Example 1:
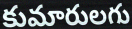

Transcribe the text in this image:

కుమారులగు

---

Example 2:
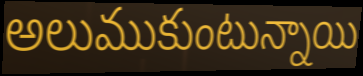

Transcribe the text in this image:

అలుముకుంటున్నాయి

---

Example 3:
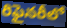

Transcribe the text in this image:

రిఫైనరీలో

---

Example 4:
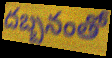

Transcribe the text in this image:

దబ్బనంతో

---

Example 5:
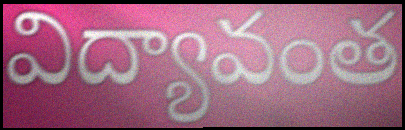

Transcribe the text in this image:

విద్యావంత